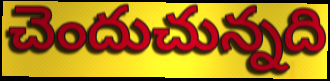
చెందుచున్నది